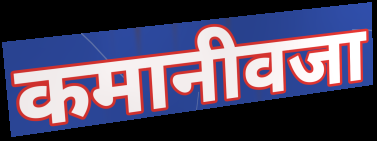
कमानीवजा